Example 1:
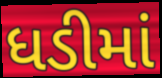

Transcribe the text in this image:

ધડીમાં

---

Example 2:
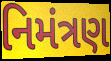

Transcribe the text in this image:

નિમંત્રણ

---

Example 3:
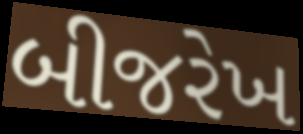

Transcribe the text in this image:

બીજરેખ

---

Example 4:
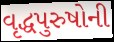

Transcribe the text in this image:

વૃદ્ધપુરુષોની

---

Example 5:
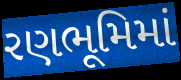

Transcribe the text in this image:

રણભૂમિમાં